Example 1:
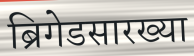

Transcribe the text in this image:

ब्रिगेडसारख्या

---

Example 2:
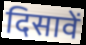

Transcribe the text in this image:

दिसावें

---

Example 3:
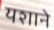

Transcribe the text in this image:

यशाने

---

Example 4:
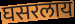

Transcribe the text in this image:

घसरलाय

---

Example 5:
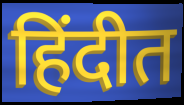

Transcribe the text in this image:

हिंदीत